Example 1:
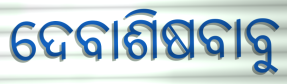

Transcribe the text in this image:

ଦେବାଶିଷବାବୁ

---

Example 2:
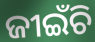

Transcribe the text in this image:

ଜୀଇଁଚି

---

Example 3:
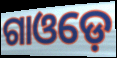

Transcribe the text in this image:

ଗାଓଡ଼େ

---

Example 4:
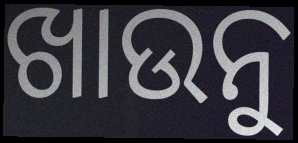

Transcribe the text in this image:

ଖାଉନୁ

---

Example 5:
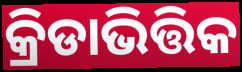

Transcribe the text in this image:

କ୍ରିଡାଭିତ୍ତିକ